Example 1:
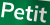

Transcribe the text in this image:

Petit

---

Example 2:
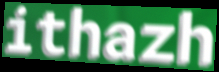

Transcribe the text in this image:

ithazh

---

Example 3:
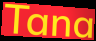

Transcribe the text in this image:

Tana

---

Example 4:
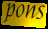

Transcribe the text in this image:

pons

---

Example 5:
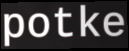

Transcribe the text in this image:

potke